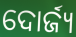
ଦୋର୍ଜ୍ୟ